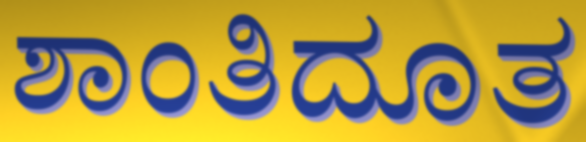
ಶಾಂತಿದೂತ